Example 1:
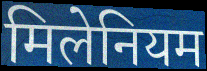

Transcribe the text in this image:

मिलेनियम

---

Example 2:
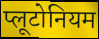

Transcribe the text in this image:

प्लूटोनियम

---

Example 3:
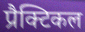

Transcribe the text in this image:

प्रैक्टिकल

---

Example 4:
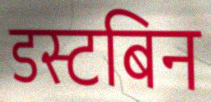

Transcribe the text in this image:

डस्टबिन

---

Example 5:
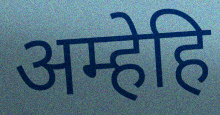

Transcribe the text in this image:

अम्हेहि